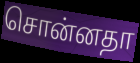
சொன்னதா